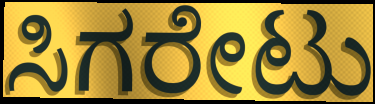
ಸಿಗರೇಟು